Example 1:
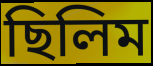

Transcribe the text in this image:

ছিলিম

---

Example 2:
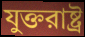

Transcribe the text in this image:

যুক্তরাষ্ট্র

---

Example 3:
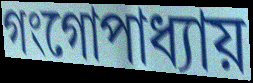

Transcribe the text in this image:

গংগোপাধ্যায়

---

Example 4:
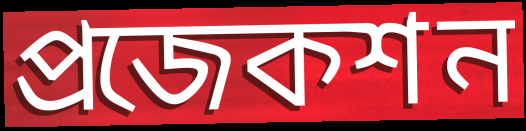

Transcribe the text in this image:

প্রজেকশন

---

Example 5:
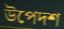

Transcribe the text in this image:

উপেদশ